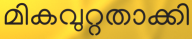
മികവുറ്റതാക്കി